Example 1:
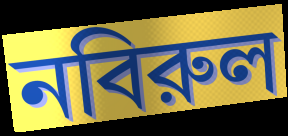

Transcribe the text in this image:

নবিরুল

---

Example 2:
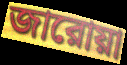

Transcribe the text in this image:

জারোয়া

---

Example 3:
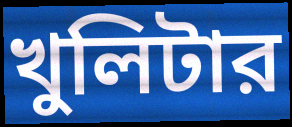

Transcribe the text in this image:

খুলিটার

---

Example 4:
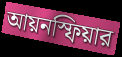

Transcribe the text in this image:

আয়নস্ফিয়ার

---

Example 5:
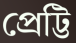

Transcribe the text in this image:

প্রেট্টি